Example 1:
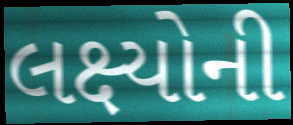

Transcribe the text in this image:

લક્ષ્યોની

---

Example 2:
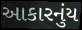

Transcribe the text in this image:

આકારનુંય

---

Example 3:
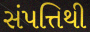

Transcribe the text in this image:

સંપત્તિથી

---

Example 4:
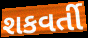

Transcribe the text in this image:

શકવર્તી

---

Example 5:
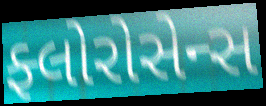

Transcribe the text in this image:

ફ્લોરોસેન્સ